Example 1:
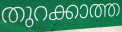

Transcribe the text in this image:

തുറക്കാത്ത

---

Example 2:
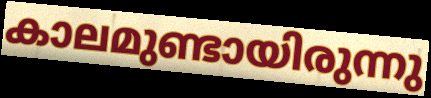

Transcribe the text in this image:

കാലമുണ്ടായിരുന്നു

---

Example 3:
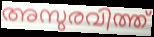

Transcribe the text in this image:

അസുരവിത്ത്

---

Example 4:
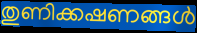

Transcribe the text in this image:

തുണിക്കഷണങ്ങൾ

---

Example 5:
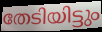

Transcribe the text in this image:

തേടിയിട്ടും